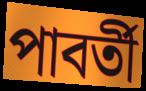
পাবর্তী